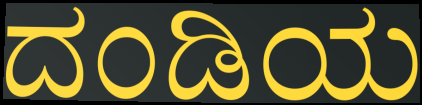
ದಂಡಿಯ